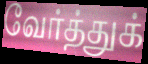
வேர்த்துக்